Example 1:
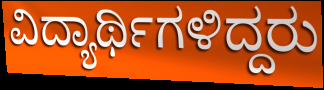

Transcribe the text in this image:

ವಿದ್ಯಾರ್ಥಿಗಳಿದ್ದರು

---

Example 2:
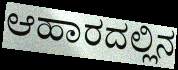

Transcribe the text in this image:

ಆಹಾರದಲ್ಲಿನ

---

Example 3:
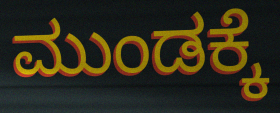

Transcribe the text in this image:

ಮುಂಡಕ್ಕೆ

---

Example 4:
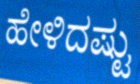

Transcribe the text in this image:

ಹೇಳಿದಷ್ಟು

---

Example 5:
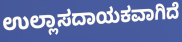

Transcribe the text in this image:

ಉಲ್ಲಾಸದಾಯಕವಾಗಿದೆ